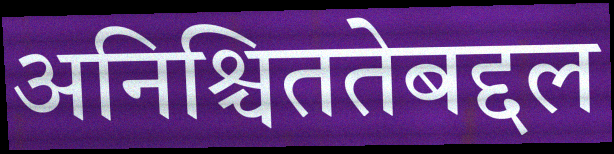
अनिश्चिततेबद्दल